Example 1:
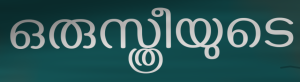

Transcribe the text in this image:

ഒരുസ്ത്രീയുടെ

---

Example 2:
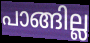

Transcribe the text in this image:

പാങ്ങില്ല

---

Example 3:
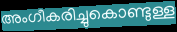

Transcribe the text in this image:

അംഗീകരിച്ചുകൊണ്ടുള്ള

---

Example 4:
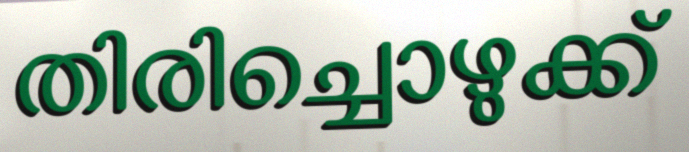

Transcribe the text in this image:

തിരിച്ചൊഴുക്ക്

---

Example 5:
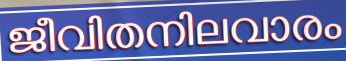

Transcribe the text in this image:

ജീവിതനിലവാരം